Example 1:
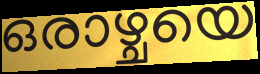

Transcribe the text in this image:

ഒരാഴ്ചയെ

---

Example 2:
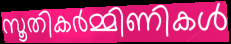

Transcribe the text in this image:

സൂതികർമ്മിണികൾ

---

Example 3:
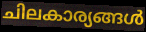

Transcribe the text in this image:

ചിലകാര്യങ്ങൾ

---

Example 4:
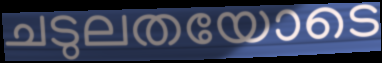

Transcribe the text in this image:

ചടുലതയോടെ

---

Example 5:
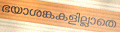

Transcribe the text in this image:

ഭയാശങ്കകളില്ലാതെ